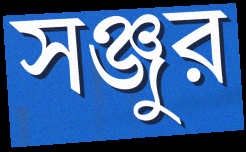
সঞ্জুর